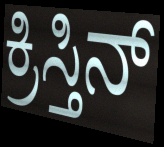
ಕ್ರಿಸ್ತಿನ್